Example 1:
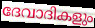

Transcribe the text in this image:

ദേവാദികളും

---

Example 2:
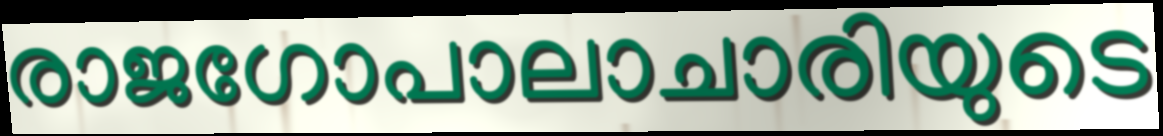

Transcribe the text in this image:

രാജഗോപാലാചാരിയുടെ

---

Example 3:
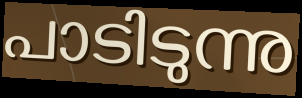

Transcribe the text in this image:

പാടിടുന്നു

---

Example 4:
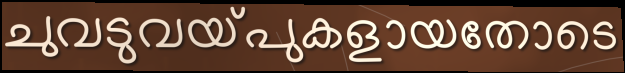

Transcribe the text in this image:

ചുവടുവയ്‌പുകളായതോടെ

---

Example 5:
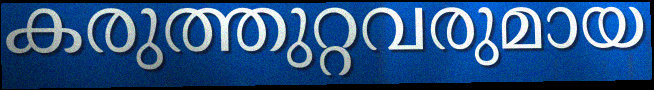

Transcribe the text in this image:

കരുത്തുറ്റവരുമായ